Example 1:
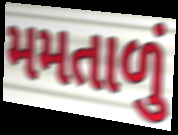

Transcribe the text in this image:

મમતાળું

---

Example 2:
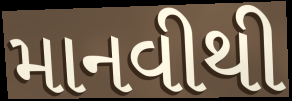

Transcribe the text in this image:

માનવીથી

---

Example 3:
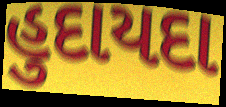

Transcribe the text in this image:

હુદાયદા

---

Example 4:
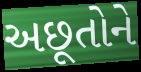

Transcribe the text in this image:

અછૂતોને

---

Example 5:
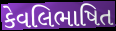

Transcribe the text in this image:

કેવલિભાષિત